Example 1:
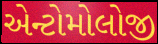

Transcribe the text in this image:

એન્ટોમોલોજી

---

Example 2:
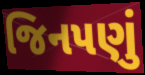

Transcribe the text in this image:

જિનપણું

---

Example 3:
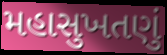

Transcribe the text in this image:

મહાસુખતણું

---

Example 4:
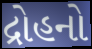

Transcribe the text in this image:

દ્રોહનો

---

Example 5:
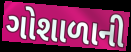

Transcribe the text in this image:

ગોશાળાની